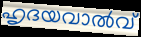
ഹൃദയവാൽവ്